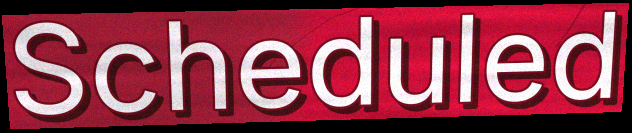
Scheduled